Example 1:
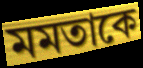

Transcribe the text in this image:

মমতাকে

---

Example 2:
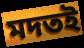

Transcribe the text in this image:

মদতই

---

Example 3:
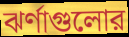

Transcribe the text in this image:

ঝর্ণাগুলোর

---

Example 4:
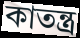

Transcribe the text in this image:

কাতন্ত্র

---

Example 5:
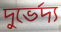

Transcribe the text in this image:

দুর্ভেদ্য